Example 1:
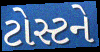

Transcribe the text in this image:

ટોસ્ટને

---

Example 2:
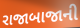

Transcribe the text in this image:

રાજાબાજાની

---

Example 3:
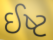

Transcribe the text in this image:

ઈષ્ટ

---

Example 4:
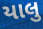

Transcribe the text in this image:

યાલુ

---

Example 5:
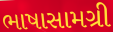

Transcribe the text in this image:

ભાષાસામગ્રી